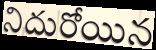
నిదురోయిన